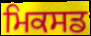
ਮਿਕਸਡ